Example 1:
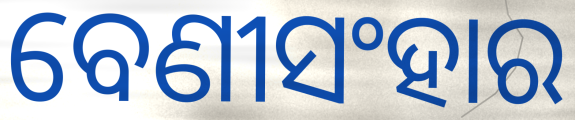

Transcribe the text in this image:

ବେଣୀସଂହାର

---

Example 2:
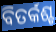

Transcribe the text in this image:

ବିତର୍କଶ୍ଚ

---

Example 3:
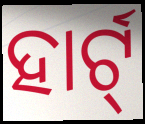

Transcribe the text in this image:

ହାର୍ଟ୍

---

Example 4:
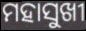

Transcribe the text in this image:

ମହାସୁଖୀ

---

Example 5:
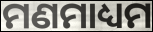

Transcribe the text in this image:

ମଣମାଧ୍ୟମ